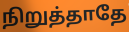
நிறுத்தாதே